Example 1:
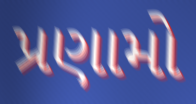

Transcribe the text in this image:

પ્રણામો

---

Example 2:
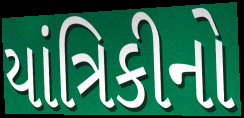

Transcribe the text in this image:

યાંત્રિકીનો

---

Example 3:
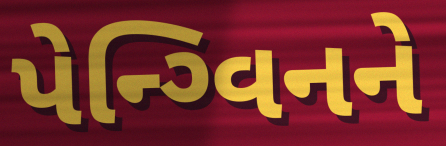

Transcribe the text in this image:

પેન્ગ્વિનને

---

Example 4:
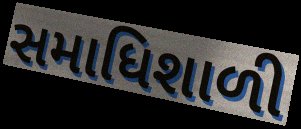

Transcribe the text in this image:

સમાધિશાળી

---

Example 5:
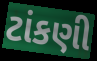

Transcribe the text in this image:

ટાંકણી